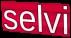
selvi